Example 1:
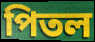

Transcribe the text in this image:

পিতল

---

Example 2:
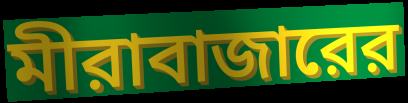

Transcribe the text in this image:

মীরাবাজারের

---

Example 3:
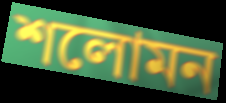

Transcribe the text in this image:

শলোমন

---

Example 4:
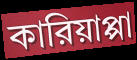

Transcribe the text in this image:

কারিয়াপ্পা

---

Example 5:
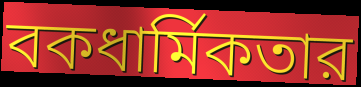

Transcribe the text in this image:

বকধার্মিকতার